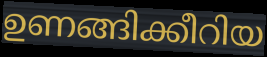
ഉണങ്ങിക്കീറിയ